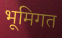
भूमिगत